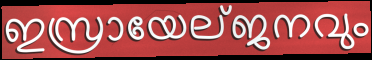
ഇസ്രായേല്ജനവും